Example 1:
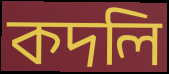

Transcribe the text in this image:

কদলি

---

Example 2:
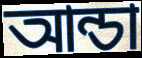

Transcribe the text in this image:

আন্ডা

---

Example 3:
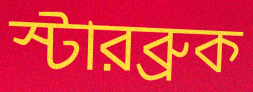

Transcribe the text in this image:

স্টারব্রুক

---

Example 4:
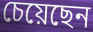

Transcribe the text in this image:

চেয়েছেন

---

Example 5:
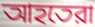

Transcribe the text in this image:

আহতেরা